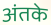
अंतके